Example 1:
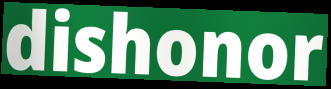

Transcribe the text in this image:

dishonor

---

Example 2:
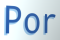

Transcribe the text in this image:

Por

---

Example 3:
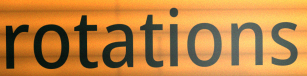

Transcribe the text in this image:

rotations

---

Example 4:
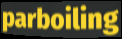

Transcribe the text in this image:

parboiling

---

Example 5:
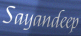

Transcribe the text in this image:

Sayandeep